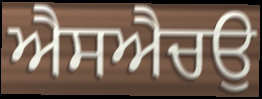
ਐਸਐਚਉ